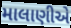
માલાણીએ